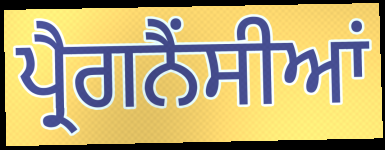
ਪ੍ਰੈਗਨੈਂਸੀਆਂ